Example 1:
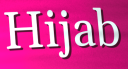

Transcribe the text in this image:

Hijab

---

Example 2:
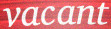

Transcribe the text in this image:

vacant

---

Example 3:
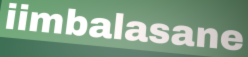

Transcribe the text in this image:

iimbalasane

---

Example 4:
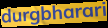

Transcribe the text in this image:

durgbharari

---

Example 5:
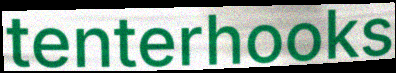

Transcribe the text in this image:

tenterhooks